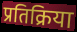
प्रतिक्रिया